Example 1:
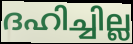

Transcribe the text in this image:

ദഹിച്ചില്ല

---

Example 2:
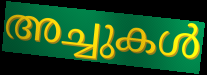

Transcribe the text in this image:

അച്ചുകൾ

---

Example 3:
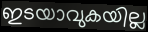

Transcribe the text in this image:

ഇടയാവുകയില്ല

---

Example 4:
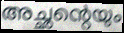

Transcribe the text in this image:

അച്ഛന്റെയും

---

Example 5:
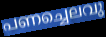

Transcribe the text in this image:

പണച്ചെലവു